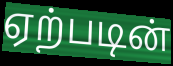
ஏற்படின்